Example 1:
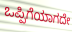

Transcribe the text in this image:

ಒಪ್ಪಿಗೆಯಾಗದೇ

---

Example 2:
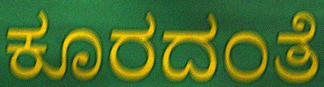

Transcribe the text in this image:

ಕೂರದಂತೆ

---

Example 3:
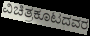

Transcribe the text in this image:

ವಿಚಿತ್ರಕೂಟದವರ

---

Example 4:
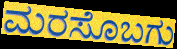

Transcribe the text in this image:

ಮರಸೊಬಗು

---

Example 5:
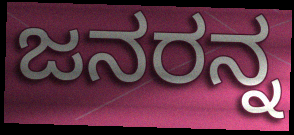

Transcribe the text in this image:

ಜನರನ್ನ